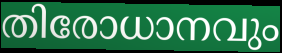
തിരോധാനവും